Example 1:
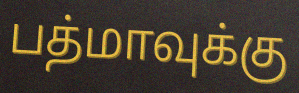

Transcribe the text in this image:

பத்மாவுக்கு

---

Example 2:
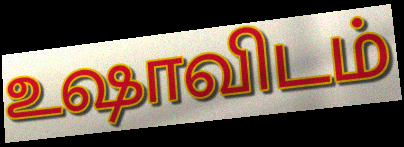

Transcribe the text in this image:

உஷாவிடம்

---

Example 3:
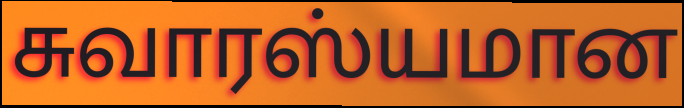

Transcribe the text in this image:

சுவாரஸ்யமான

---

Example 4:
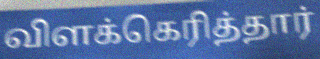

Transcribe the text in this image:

விளக்கெரித்தார்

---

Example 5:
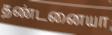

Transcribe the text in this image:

தண்டனையா